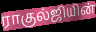
ராகுல்ஜியின்